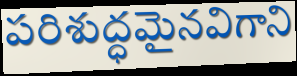
పరిశుద్ధమైనవిగాని